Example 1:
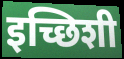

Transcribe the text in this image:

इच्छिशी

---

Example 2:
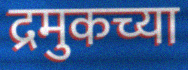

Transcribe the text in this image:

द्रमुकच्या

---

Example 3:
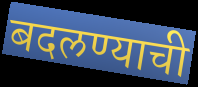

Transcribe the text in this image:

बदलण्याची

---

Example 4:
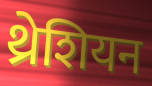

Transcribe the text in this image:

थ्रेशियन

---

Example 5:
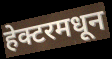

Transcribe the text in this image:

हेक्टरमधून